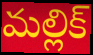
మల్లిక్